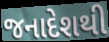
જનાદેશથી